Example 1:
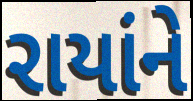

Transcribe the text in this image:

રાયાંને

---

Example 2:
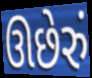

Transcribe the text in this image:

ઊછેરું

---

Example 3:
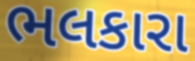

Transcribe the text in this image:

ભલકારા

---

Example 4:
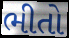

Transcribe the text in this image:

ભીતો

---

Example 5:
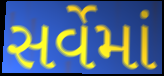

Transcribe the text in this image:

સર્વેમાં